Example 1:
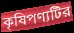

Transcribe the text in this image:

কৃষিপণ্যটির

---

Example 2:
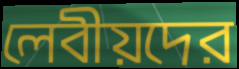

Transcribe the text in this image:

লেবীয়দের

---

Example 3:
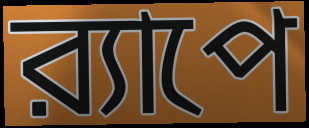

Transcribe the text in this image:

র‍্যাপে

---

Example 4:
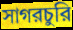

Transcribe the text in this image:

সাগরচুরি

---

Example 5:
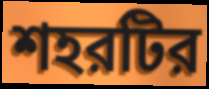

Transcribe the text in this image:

শহরটির